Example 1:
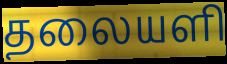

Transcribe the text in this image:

தலையளி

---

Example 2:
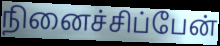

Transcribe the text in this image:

நினைச்சிப்பேன்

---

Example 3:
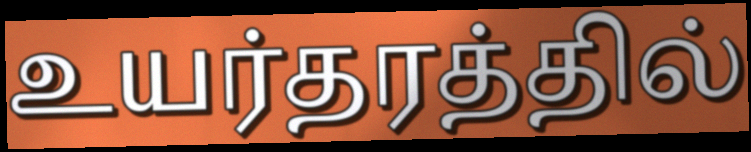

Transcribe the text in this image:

உயர்தரத்தில்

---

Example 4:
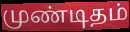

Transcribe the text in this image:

முண்டிதம்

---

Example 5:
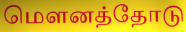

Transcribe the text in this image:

மௌனத்தோடு